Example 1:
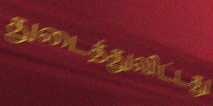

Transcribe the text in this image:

துடைத்துவிட்டது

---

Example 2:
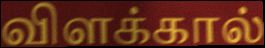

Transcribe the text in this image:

விளக்கால்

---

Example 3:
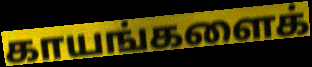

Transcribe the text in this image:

காயங்களைக்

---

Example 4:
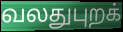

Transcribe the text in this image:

வலதுபுறக்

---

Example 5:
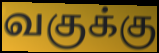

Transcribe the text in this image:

வகுக்கு